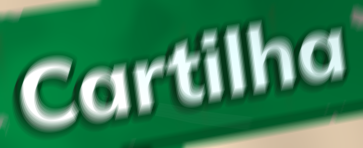
Cartilha